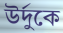
উর্দুকে